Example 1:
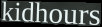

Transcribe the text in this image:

kidhours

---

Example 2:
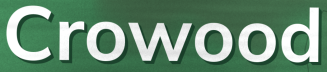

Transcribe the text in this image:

Crowood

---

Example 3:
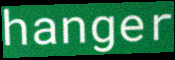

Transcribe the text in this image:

hanger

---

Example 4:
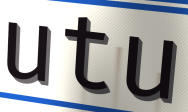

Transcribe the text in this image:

utu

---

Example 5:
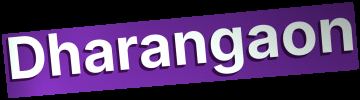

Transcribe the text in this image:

Dharangaon